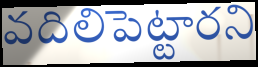
వదిలిపెట్టారని